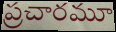
ప్రచారమూ